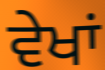
ਵੇਖਾਂ